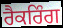
ਰੈਕਰਿੰਗ